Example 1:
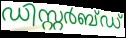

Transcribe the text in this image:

ഡിസ്റ്റർബ്ഡ്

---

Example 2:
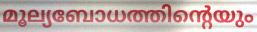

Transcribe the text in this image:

മൂല്യബോധത്തിന്റെയും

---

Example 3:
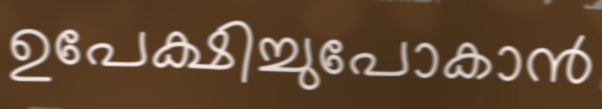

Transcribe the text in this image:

ഉപേക്ഷിച്ചുപോകാൻ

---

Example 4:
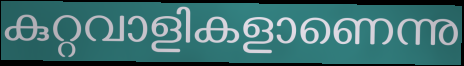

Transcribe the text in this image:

കുറ്റവാളികളാണെന്നു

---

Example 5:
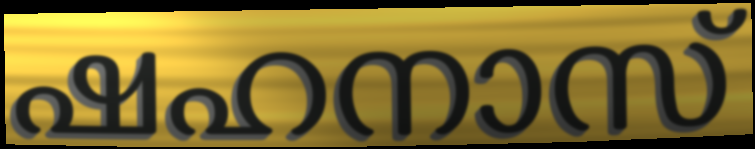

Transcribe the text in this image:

ഷഹനാസ്